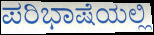
ಪರಿಭಾಷೆಯಲ್ಲಿ